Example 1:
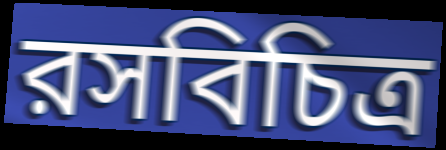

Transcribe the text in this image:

রসবিচিত্র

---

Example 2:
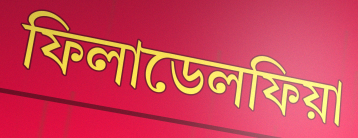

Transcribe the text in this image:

ফিলাডেলফিয়া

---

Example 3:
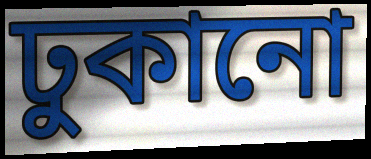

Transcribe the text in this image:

ঢুকানো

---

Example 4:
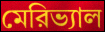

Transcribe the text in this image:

মেরিভ্যাল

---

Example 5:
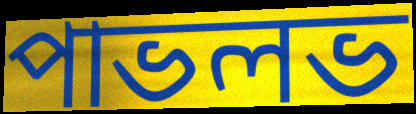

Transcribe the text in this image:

পাভলভ